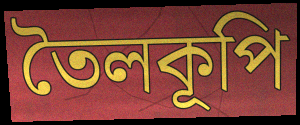
তৈলকূপি